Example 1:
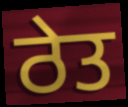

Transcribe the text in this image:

ठेउ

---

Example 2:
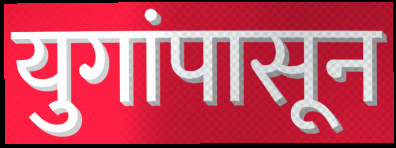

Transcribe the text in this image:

युगांपासून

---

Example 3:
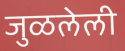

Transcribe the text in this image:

जुळलेली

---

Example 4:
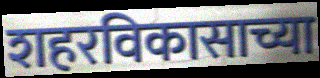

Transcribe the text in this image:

शहरविकासाच्या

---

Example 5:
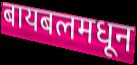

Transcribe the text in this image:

बायबलमधून